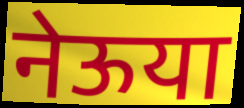
नेऊया